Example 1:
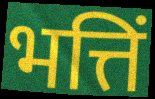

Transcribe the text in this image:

भत्तिं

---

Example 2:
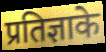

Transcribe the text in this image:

प्रतिज्ञाके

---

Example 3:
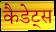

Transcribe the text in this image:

कैडेट्स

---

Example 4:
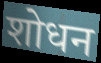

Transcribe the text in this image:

शोधन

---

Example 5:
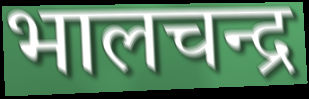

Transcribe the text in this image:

भालचन्द्र